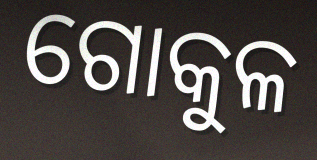
ଗୋକୁଳ